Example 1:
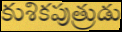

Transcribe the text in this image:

కుశికపుత్రుడు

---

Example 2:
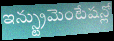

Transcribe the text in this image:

ఇన్స్ట్రుమెంటేషన్లో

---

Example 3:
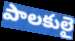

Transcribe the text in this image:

పాలకులై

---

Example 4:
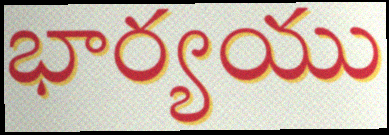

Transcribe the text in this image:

భార్యయు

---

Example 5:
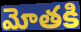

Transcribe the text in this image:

మోతకి